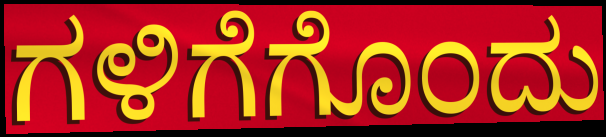
ಗಳಿಗೆಗೊಂದು